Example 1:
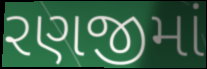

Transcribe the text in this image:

રણજીમાં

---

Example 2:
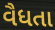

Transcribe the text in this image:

વૈધતા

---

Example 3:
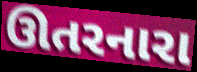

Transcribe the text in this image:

ઊતરનારા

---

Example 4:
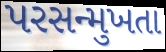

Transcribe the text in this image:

પરસન્મુખતા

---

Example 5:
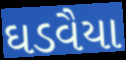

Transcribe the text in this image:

ઘડવૈયા